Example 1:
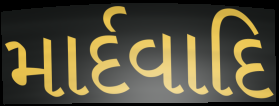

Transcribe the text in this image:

માર્દવાદિ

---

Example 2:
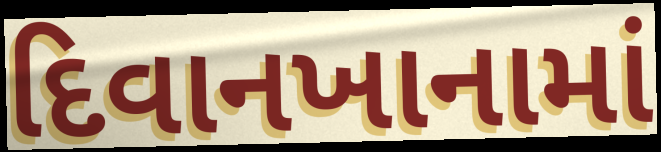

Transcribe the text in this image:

દિવાનખાનામાં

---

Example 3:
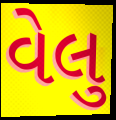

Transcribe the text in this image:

વેલુ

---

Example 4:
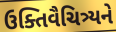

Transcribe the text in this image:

ઉક્તિવૈચિત્ર્યને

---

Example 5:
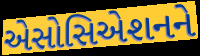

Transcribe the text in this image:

એસોસિએશનને